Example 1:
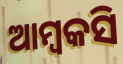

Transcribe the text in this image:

ଆମ୍ବକସି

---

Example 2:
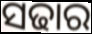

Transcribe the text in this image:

ସଢାର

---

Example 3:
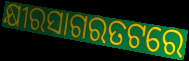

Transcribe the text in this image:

କ୍ଷୀରସାଗରତଟରେ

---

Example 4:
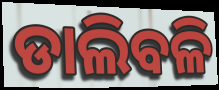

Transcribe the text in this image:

ଡାଲିବଳି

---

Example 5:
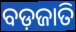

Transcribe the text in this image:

ବଡ଼ଜାତି